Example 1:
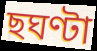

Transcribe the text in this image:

ছঘণ্টা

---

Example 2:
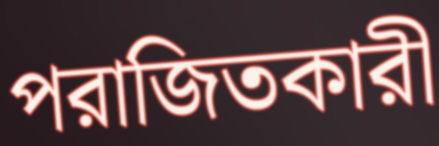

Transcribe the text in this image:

পরাজিতকারী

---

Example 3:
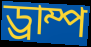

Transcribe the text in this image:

ড্রাম্প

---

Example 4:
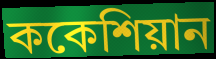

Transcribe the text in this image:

ককেশিয়ান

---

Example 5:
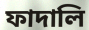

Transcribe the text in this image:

ফাদালি